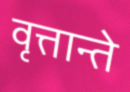
वृत्तान्ते